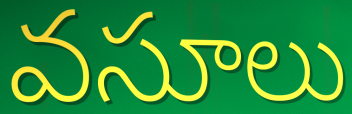
వసూలు